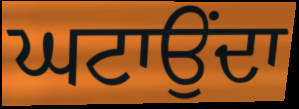
ਘਟਾਉਂਦਾ